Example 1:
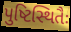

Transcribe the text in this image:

પુષ્ટિસ્થિતૈઃ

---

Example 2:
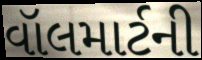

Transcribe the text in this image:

વૉલમાર્ટની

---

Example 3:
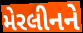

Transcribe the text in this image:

મેરલીનને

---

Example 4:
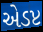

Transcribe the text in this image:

એડપ્ટ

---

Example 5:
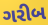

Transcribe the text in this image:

ગરીબ